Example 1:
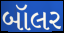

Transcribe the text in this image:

બૉલર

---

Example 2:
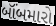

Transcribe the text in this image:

બૉંબમારો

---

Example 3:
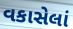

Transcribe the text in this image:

વકાસેલાં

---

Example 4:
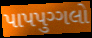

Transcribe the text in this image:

પાપપુગ્ગલો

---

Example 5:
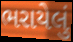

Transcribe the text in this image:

ભરાયેલું